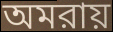
অমরায়